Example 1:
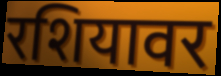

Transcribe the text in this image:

रशियावर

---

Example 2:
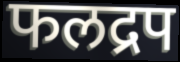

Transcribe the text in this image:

फलद्रप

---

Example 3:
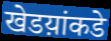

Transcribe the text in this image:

खेडय़ांकडे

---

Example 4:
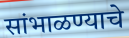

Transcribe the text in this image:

सांभाळण्याचे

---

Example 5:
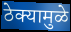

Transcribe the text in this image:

ठेक्यामुळे